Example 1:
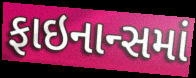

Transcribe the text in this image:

ફાઇનાન્સમાં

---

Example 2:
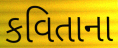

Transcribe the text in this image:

કવિતાના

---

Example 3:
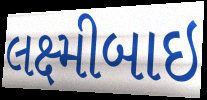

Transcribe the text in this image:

લક્ષ્મીબાઇ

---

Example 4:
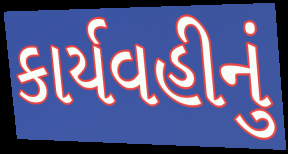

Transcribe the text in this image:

કાર્યવહીનું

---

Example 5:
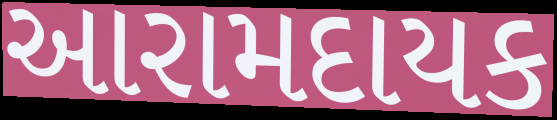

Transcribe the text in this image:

આરામદાયક